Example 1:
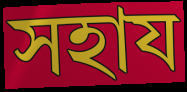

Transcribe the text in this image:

সহায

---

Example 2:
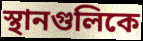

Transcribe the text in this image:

স্থানগুলিকে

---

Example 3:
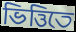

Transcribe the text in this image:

ভিত্তিতে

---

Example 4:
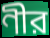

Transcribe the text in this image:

ণীর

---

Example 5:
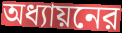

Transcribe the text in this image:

অধ্যায়নের